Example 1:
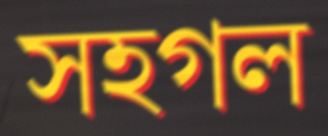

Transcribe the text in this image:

সহগল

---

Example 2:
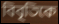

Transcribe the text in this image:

বিবৃতিকে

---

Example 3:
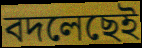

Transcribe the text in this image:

বদলেছেই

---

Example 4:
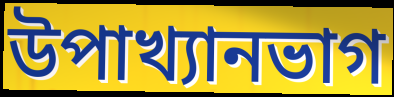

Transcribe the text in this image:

উপাখ্যানভাগ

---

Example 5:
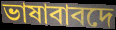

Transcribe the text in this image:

ভাষাবাবদে